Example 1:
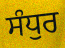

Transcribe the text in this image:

ਸੰਧੁਰ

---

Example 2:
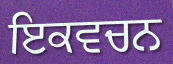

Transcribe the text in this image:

ਇਕਵਚਨ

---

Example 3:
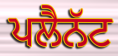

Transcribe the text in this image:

ਪਲੈਨੱਟ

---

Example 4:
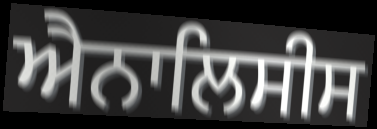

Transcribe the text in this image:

ਐਨਾਲਿਸੀਸ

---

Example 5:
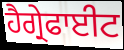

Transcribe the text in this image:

ਹੈਗ੍ਰੇਫਾਈਟ